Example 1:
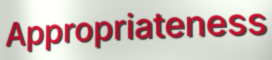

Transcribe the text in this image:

Appropriateness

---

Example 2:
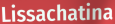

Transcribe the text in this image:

Lissachatina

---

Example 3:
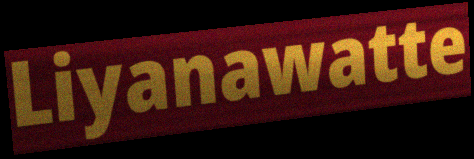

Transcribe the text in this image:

Liyanawatte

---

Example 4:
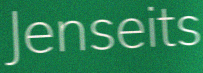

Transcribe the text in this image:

Jenseits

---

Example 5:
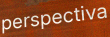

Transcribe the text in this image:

perspectiva